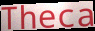
Theca